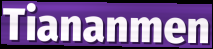
Tiananmen